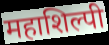
महाशिल्पी